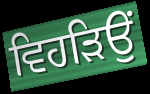
ਵਿਹੜਿਉਂ